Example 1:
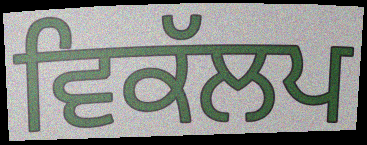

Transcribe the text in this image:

ਵਿਕੱਲਪ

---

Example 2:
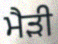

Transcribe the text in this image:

ਮੈੜੀ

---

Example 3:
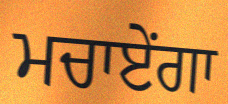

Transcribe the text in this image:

ਮਚਾਏਂਗਾ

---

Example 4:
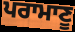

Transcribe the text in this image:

ਪਰਾਮਾਣੂ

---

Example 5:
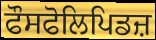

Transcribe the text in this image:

ਫੌਸਫੋਲਿਪਿਡਜ਼